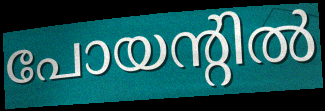
പോയന്റിൽ